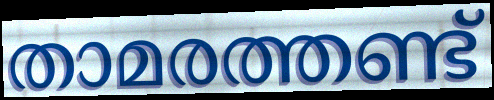
താമരത്തണ്ട്